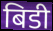
बिडी